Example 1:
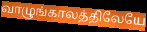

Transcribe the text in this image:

வாழுங்காலத்திலேயே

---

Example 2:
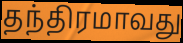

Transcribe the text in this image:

தந்திரமாவது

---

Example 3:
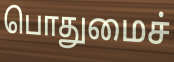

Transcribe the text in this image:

பொதுமைச்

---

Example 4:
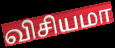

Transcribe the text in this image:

விசியமா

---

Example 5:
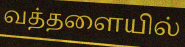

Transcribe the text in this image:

வத்தளையில்